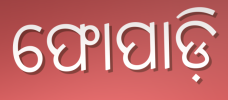
ଫୋପାଡ଼ି